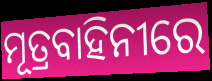
ମୂତ୍ରବାହିନୀରେ